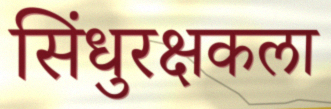
सिंधुरक्षकला